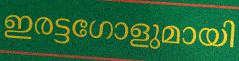
ഇരട്ടഗോളുമായി